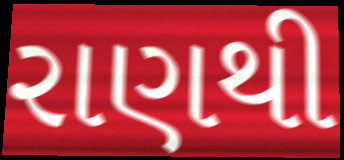
રાણથી